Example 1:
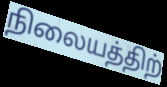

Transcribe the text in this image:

நிலையத்திற்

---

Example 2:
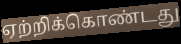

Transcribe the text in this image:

ஏற்றிக்கொண்டது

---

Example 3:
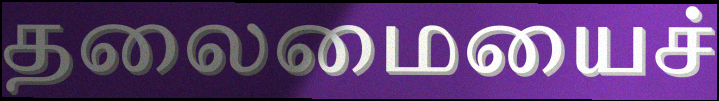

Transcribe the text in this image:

தலைமையைச்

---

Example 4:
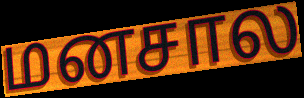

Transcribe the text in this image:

மனசால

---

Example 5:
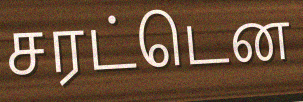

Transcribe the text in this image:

சரட்டென